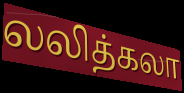
லலித்கலா